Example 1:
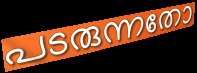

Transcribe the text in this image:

പടരുന്നതോ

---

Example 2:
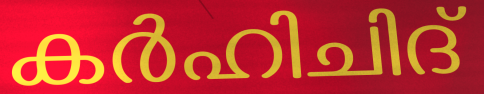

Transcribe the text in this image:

കർഹിചിദ്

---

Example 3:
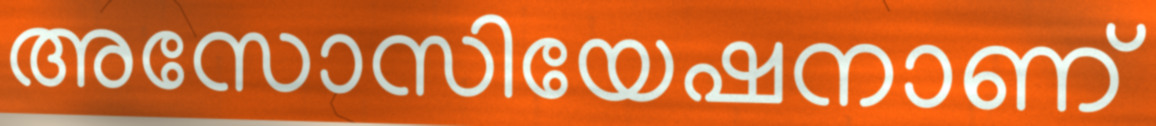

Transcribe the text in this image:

അസോസിയേഷനാണ്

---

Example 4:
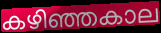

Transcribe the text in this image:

കഴിഞ്ഞകാല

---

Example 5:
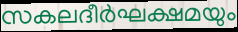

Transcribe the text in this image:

സകലദീർഘക്ഷമയും